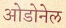
ओडोनेल